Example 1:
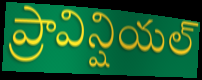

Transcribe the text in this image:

ప్రావిన్షియల్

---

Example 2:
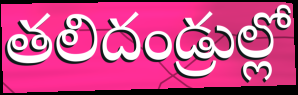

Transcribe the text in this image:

తలిదండ్రుల్లో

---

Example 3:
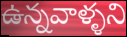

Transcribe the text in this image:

ఉన్నవాళ్ళని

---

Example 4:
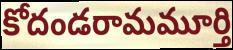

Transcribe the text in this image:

కోదండరామమూర్తి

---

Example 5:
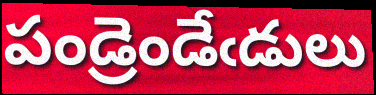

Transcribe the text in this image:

పండ్రెండేఁడులు